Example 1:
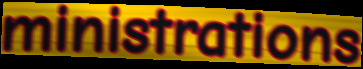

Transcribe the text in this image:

ministrations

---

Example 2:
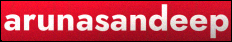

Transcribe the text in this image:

arunasandeep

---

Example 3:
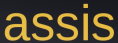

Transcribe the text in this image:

assis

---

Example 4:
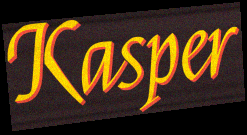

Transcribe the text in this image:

Kasper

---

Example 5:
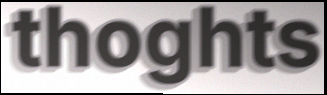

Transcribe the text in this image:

thoghts